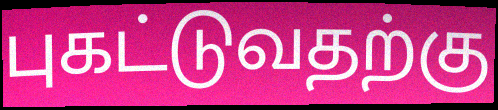
புகட்டுவதற்கு